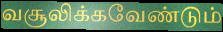
வசூலிக்கவேண்டும்